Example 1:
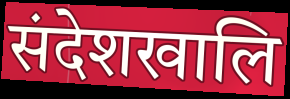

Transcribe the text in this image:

संदेशखालि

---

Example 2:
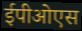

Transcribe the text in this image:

ईपीओएस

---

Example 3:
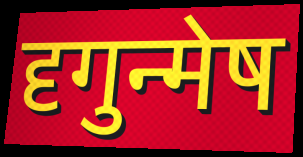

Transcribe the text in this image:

दृगुन्मेष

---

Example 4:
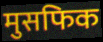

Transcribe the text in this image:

मुसफिक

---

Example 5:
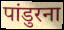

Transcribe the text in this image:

पांडुरना